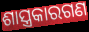
ଶାସ୍ତ୍ରକାରଗଣ